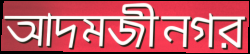
আদমজীনগর